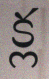
క్ల